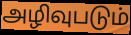
அழிவுபடும்